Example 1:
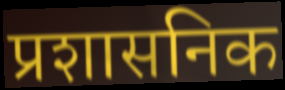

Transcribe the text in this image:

प्रशासनिक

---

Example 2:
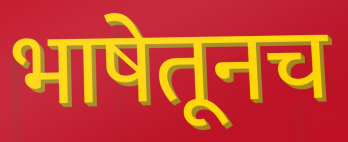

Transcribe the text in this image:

भाषेतूनच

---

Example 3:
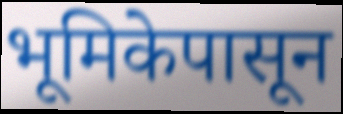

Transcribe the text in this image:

भूमिकेपासून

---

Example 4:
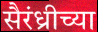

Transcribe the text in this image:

सैरंध्रीच्या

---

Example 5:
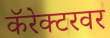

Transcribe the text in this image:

कॅरेक्टरवर